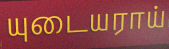
யுடையராய்